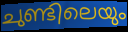
ചുണ്ടിലെയും